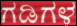
ಗಡಿಗಳ